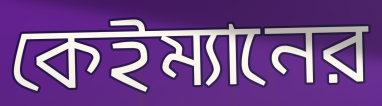
কেইম্যানের